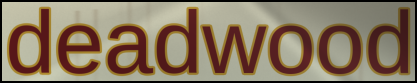
deadwood